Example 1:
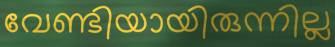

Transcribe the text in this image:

വേണ്ടിയായിരുന്നില്ല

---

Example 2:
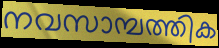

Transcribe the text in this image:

നവസാമ്പത്തിക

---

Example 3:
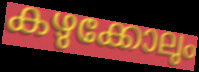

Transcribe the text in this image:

കഴുക്കോലും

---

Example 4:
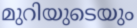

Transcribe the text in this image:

മുറിയുടെയും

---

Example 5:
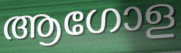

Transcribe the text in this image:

ആഗോള